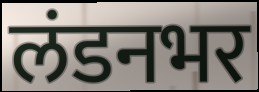
लंडनभर